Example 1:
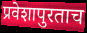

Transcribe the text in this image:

प्रवेशापुरताच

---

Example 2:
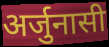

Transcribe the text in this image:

अर्जुनासी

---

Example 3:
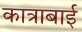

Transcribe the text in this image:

कात्राबाई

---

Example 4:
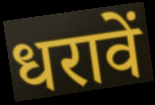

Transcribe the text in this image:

धरावें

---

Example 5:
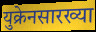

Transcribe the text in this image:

युक्रेनसारख्या